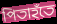
পিতাহঁতে